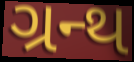
ગ્રન્થ